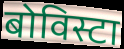
बोविस्टा